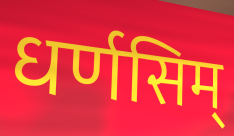
धर्णसिम्